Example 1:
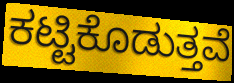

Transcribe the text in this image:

ಕಟ್ಟಿಕೊಡುತ್ತವೆ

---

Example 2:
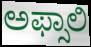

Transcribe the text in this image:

ಅಫ್ಸಾಲಿ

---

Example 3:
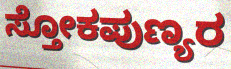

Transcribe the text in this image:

ಸ್ತೋಕಪುಣ್ಯರ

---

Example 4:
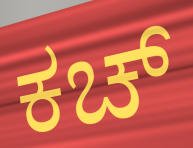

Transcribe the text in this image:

ಕಚ್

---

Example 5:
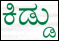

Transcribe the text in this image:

ಕಿಡ್ಡು